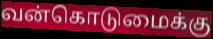
வன்கொடுமைக்கு